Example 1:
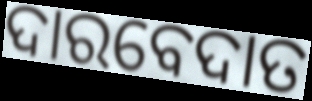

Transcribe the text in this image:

ଦାରବେଦାତ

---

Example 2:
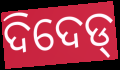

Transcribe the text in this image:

ଦିଦେଡ୍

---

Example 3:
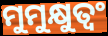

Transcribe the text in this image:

ମୁମୁକ୍ଷୁତ୍ୱଂ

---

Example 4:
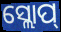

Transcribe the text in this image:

ସ୍ଲୋପ୍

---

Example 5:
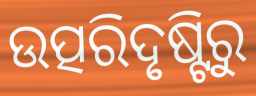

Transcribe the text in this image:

ଉତ୍ପରିଦୃଷ୍ଟିରୁ